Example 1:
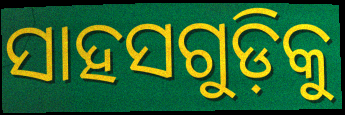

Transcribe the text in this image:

ସାହସଗୁଡ଼ିକୁ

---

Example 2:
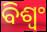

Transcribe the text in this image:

ବିଶ୍ୱଂ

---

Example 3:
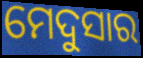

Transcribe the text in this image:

ମେଦୁସାର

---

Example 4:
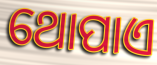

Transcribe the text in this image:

ଥୋପାଏ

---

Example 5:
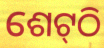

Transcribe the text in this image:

ଶେଟ୍‍ଠି